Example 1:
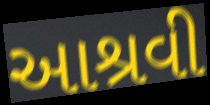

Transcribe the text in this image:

આશ્રવી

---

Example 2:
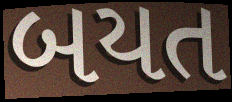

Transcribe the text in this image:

બયત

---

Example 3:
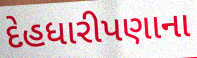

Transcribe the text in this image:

દેહધારીપણાના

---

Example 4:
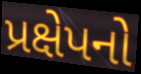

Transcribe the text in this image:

પ્રક્ષેપનો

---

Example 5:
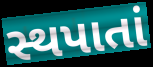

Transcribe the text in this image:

સ્થપાતાં